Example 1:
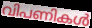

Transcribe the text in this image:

വിപണികൾ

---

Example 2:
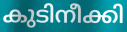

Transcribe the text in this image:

കുടിനീക്കി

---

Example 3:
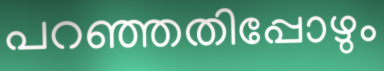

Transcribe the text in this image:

പറഞ്ഞതിപ്പോഴും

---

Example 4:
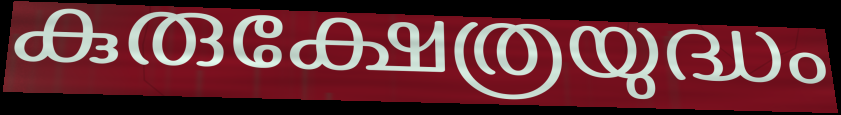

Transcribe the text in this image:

കുരുക്ഷേത്രയുദ്ധം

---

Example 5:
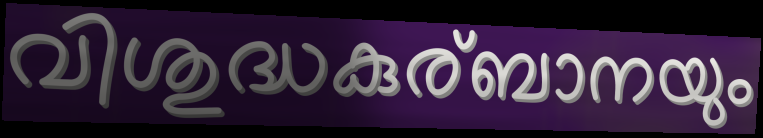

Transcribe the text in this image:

വിശുദ്ധകുര്ബാനയും